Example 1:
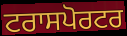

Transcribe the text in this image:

ਟਰਾਸਪੋਰਟਰ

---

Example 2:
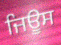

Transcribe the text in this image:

ਜਿਊਸ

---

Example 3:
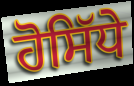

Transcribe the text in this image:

ਹੋਸਿੱਧੇ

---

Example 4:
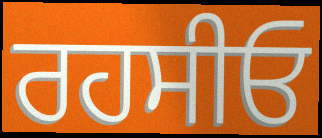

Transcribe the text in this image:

ਰਹਸੀਓ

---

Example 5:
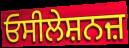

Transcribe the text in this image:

ਓਸੀਲੇਸ਼ਨਜ਼